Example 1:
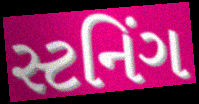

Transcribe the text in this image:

સ્ટનિંગ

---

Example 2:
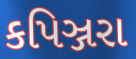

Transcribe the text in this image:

કપિઞ્જરા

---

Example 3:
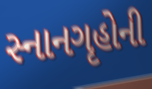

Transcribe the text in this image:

સ્નાનગૃહોની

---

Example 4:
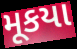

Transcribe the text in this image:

મૂકયા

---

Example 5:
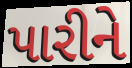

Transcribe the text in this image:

પારીને